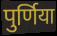
पुर्णिया